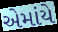
એમાંયે